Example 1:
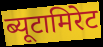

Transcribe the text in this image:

ब्यूटामिरेट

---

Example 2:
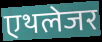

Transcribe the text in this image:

एथलेजर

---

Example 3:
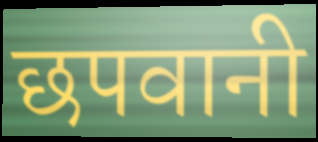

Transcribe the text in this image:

छपवानी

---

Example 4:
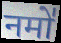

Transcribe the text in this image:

नमो॑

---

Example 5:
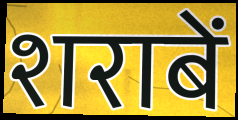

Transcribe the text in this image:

शराबें